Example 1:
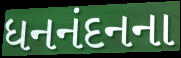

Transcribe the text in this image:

ધનનંદનના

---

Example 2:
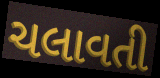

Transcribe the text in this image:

ચલાવતી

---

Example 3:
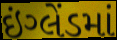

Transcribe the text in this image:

ઇંગ્લેંડમાં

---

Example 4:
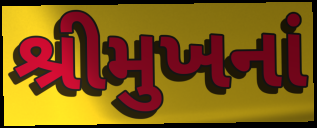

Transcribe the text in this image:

શ્રીમુખનાં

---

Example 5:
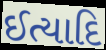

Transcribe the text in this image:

ઈત્યાદિ